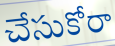
చేసుకోరా